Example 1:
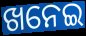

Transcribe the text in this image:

ଖନେଇ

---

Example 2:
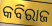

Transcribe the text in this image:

କବିରାଜ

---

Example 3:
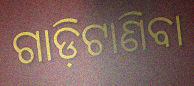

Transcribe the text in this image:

ଗାଡ଼ିଟାଣିବା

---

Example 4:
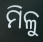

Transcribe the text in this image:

ମିଳୁ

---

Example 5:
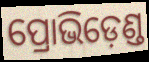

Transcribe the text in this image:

ପ୍ରୋଭିଡ଼େଣ୍ଡ